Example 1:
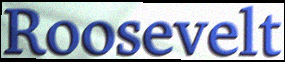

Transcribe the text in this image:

Roosevelt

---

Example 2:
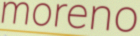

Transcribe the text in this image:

moreno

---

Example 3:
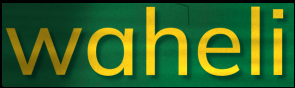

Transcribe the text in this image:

waheli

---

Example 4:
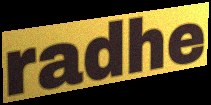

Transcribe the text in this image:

radhe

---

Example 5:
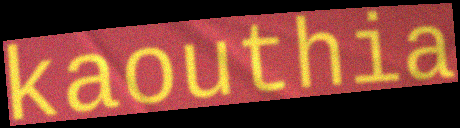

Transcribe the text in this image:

kaouthia